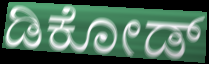
ಡಿಕೋಡ್